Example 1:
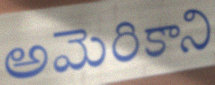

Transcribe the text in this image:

అమెరికాని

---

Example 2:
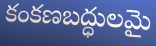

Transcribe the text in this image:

కంకణబద్ధులమై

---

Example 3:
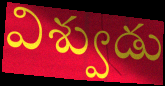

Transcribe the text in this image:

విశ్వుడు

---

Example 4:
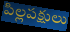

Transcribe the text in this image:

పిల్లపక్షులు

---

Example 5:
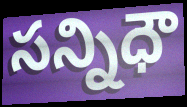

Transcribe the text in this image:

సన్నిధౌ